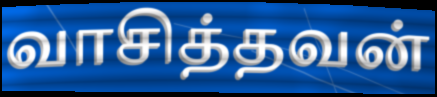
வாசித்தவன்